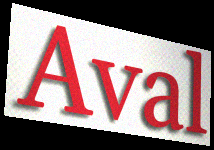
Aval